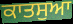
ਕਾਤਸੁਆ